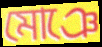
মোঞে